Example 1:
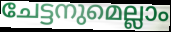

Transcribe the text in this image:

ചേട്ടനുമെല്ലാം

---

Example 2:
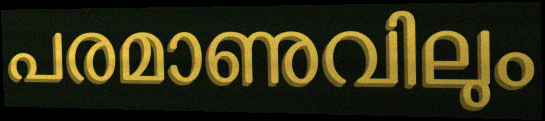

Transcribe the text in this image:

പരമാണുവിലും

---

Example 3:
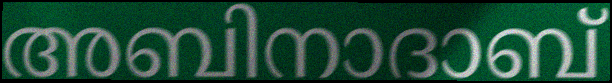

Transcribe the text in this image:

അബിനാദാബ്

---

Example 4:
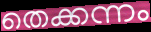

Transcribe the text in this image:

തെക്കന്നം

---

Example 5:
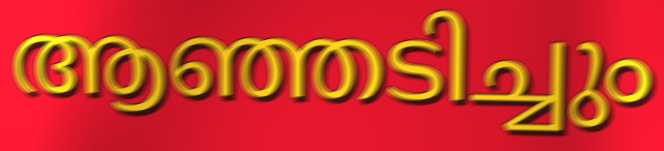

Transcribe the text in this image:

ആഞ്ഞടിച്ചും